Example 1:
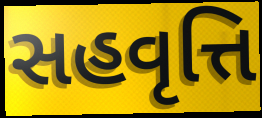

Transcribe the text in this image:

સહવૃત્તિ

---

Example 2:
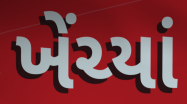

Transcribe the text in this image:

ખેંચ્યાં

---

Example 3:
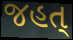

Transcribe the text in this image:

જહત્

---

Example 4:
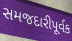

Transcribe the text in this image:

સમજદારીપૂર્વક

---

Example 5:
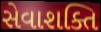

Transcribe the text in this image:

સેવાશક્તિ